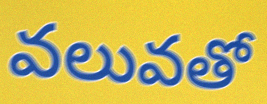
వలువతో